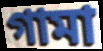
গামা